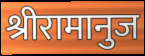
श्रीरामानुज